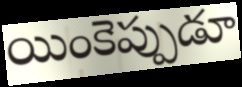
యింకెప్పుడూ